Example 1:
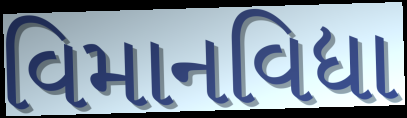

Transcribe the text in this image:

વિમાનવિદ્યા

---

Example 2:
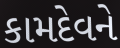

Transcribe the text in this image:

કામદેવને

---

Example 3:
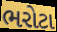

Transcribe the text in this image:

ભરોટા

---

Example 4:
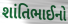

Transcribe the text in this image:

શાંતિભાઈનો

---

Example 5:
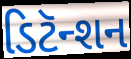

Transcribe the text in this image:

ડિટૅન્શન